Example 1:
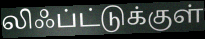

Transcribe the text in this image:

லிஃப்ட்டுக்குள்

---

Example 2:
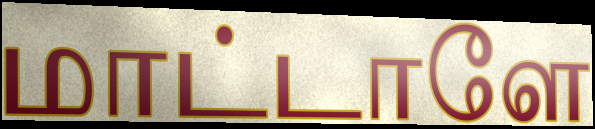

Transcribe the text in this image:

மாட்டாளே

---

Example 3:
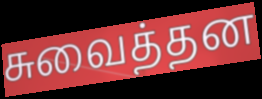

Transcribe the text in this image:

சுவைத்தன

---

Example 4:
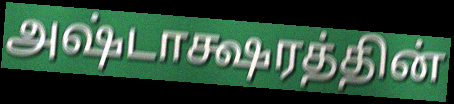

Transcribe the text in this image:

அஷ்டாக்ஷரத்தின்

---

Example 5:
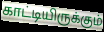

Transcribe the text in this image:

காட்டியிருக்கும்